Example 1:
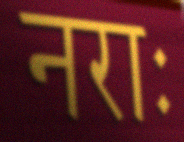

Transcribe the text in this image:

नराः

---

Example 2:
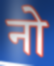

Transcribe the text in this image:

नो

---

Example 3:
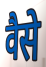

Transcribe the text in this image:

वैसे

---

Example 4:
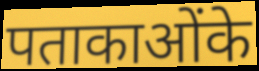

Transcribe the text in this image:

पताकाओंके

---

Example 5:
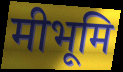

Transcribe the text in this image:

मीभूमि